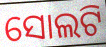
ସୋଲଟି